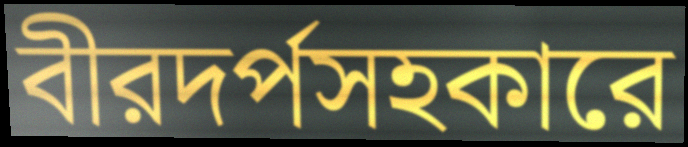
বীরদর্পসহকারে